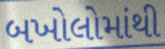
બખોલોમાંથી